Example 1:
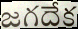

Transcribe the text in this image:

జగదేక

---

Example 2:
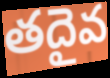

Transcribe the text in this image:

తదైవ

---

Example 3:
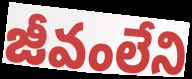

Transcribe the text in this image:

జీవంలేని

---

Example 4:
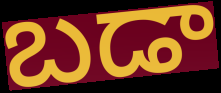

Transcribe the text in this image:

బడా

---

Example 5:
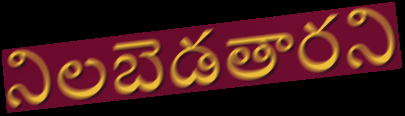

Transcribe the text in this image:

నిలబెడతారని